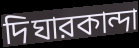
দিঘারকান্দা